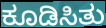
ಕೂಡಿಸಿತು